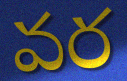
వర